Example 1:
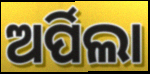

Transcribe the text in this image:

ଅର୍ପିଲା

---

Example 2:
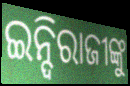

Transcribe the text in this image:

ଇନ୍ଦିରାଜୀଙ୍କୁ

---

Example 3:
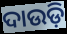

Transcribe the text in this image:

ଦାଉଡ଼ି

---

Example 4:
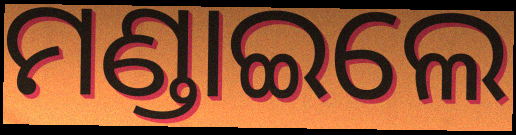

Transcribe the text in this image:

ମଣ୍ଡାଇଲେ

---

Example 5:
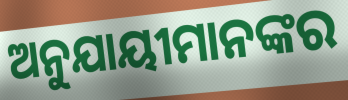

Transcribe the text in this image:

ଅନୁଯାୟୀମାନଙ୍କର